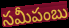
సమీపంబు